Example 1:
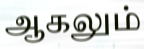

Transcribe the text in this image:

ஆகலும்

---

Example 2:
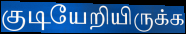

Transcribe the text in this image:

குடியேறியிருக்க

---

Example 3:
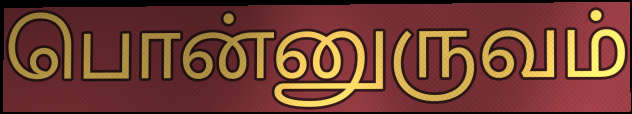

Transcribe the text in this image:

பொன்னுருவம்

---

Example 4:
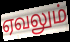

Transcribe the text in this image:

ஏவலும்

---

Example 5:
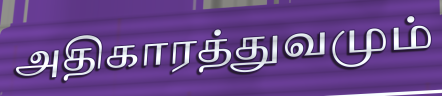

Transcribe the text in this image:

அதிகாரத்துவமும்